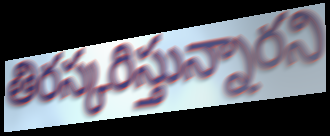
తిరస్కరిస్తున్నారని